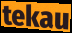
tekau